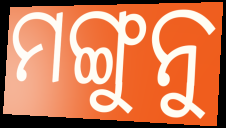
ମଙ୍ଗୁନୁ